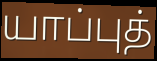
யாப்புத்